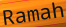
Ramah